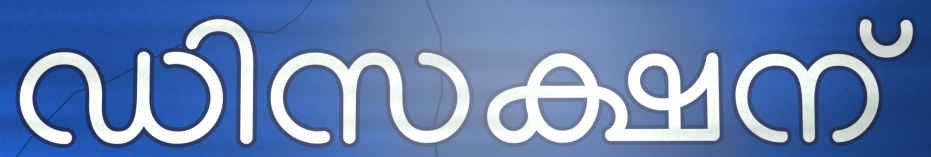
ഡിസക്ഷന്